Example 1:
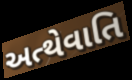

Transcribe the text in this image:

અત્થેવાતિ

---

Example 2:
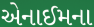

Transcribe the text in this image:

એનાઈમના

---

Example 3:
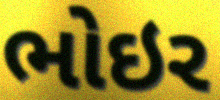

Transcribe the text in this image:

ભોઇર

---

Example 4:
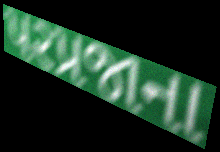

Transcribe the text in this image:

પરપ્રજાના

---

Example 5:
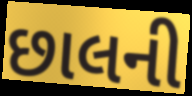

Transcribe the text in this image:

છાલની